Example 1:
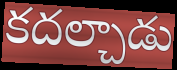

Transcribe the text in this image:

కదల్చాడు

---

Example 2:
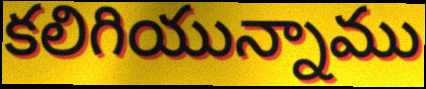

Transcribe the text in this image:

కలిగియున్నాము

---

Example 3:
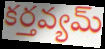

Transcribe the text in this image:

కర్తవ్యమ్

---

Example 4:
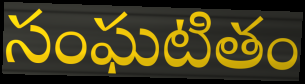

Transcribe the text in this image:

సంఘటితం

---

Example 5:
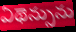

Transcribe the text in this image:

ఏథెన్సును